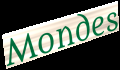
Mondes